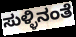
ಸುಳ್ಳಿನಂತೆ